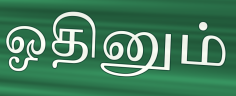
ஓதினும்